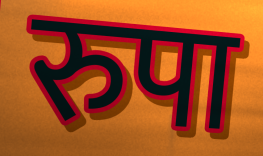
रुपा